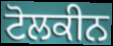
ਟੋਲਕੀਨ